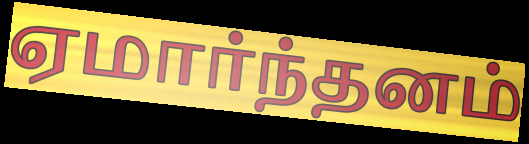
ஏமார்ந்தனம்